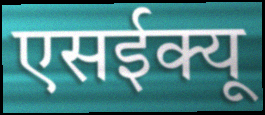
एसईक्यू